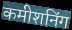
कमीशनिंग